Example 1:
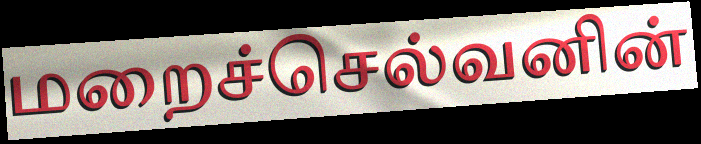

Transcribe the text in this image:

மறைச்செல்வனின்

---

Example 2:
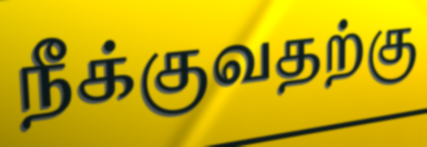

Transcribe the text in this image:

நீக்குவதற்கு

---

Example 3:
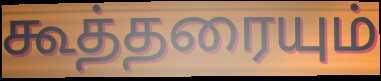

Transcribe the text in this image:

கூத்தரையும்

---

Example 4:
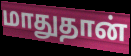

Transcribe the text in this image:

மாதுதான்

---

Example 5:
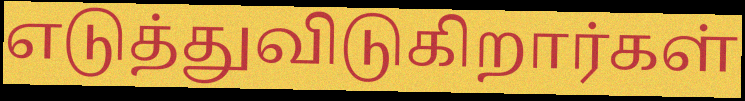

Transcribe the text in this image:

எடுத்துவிடுகிறார்கள்